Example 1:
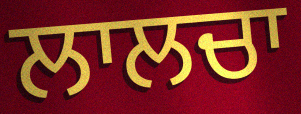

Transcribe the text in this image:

ਲਾਲਚਾ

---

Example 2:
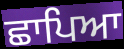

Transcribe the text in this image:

ਛਾਪਿਆ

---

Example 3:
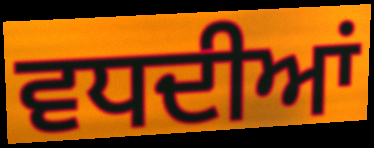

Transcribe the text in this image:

ਵਧਦੀਆਂ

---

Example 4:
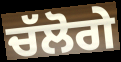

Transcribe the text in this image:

ਚੱਲੋਗੇ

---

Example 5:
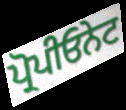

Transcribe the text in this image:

ਪ੍ਰੋਪੀਓਨੇਟ